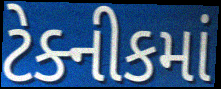
ટેક્નીકમાં